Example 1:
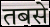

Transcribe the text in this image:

तबसे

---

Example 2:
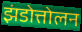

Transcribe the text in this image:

झंडोत्तोलन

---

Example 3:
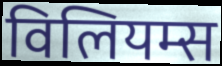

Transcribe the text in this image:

विलियम्स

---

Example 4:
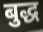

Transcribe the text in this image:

बुद्ध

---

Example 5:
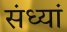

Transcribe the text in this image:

संध्यां